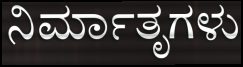
ನಿರ್ಮಾತೃಗಳು